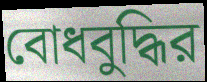
বোধবুদ্ধির